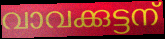
വാവക്കുട്ടന്